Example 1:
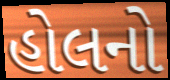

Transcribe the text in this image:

હોલનો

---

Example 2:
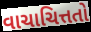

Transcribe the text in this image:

વાચાચિત્તતો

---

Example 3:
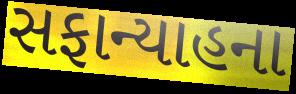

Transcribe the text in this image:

સફાન્યાહના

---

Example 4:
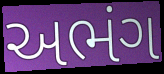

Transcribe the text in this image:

અભંગ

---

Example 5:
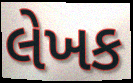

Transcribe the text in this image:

લેખક